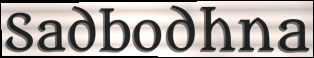
Sadbodhna